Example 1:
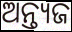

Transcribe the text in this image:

ଅନ୍ତ୍ୟଜ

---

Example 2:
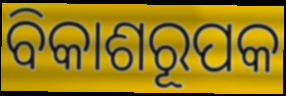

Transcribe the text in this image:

ବିକାଶରୂପକ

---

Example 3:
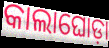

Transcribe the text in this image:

କାଲାଘୋଡ଼ା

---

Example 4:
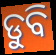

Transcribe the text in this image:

ଡୁବି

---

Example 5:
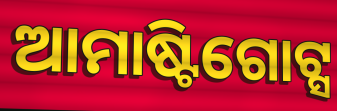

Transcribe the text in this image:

ଆମାଷ୍ଟିଗୋଟ୍ସ